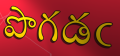
పొగడఁ